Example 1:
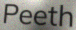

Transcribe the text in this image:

Peeth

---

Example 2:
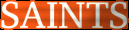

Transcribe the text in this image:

SAINTS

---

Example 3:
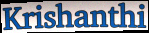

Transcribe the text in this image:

Krishanthi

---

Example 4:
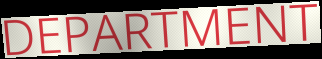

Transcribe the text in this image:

DEPARTMENT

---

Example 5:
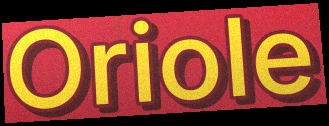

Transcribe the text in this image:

Oriole